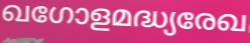
ഖഗോളമദ്ധ്യരേഖ